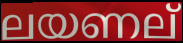
ലയണല്